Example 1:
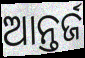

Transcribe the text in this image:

ଆନ୍ତର୍ଜ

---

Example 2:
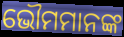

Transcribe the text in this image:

ଭୌମମାନଙ୍କ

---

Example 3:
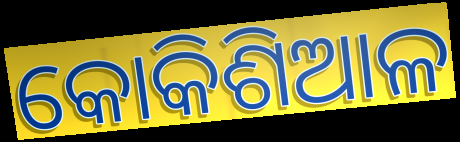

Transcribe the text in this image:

କୋକିଶିଆଳ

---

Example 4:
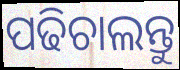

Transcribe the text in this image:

ପଢିଚାଲନ୍ତୁ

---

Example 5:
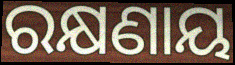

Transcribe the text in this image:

ରକ୍ଷଣାୟ